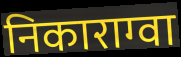
निकाराग्वा